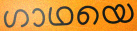
ഗാഥയെ